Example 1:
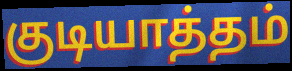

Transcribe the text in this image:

குடியாத்தம்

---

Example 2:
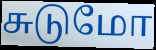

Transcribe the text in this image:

சுடுமோ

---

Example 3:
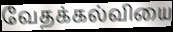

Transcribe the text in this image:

வேதக்கல்வியை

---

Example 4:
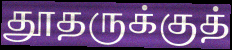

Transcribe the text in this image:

தூதருக்குத்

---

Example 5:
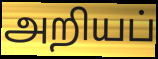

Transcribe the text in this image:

அறியப்